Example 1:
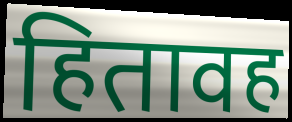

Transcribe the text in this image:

हितावह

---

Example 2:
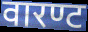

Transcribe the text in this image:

वारण्ट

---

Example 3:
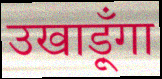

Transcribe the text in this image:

उखाड़ूँगा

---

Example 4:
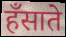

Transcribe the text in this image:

हँसाते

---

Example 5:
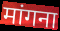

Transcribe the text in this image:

मांगना